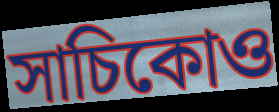
সাচিকোও